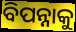
ବିପନ୍ନାକୁ